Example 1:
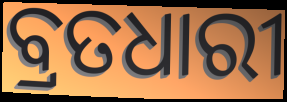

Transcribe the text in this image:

ବ୍ରତଧାରୀ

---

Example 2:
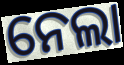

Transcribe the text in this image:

ନେଲା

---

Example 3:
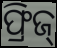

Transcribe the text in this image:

ଫ୍ରିଜ୍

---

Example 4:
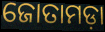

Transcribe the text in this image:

ଜୋତାମଡ଼ା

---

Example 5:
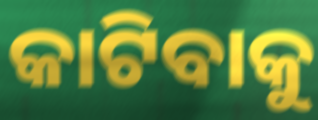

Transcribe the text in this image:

କାଟିବାକୁ